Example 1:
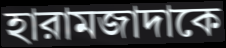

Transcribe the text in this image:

হারামজাদাকে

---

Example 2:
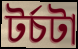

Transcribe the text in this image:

টর্চটা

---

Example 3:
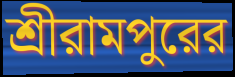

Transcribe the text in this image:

শ্রীরামপুরের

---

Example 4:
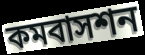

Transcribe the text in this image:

কমবাসশন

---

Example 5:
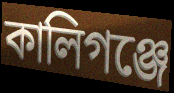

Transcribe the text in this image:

কালিগঞ্জে